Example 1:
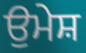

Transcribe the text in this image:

ਉਮੇਸ਼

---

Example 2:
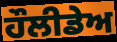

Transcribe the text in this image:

ਹੌਲੀਡੇਅ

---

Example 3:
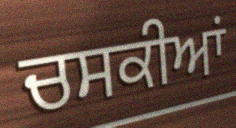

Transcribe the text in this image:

ਚਸਕੀਆਂ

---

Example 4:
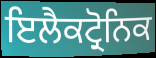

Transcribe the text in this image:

ਇਲੈਕਟ੍ਰੋਨਿਕ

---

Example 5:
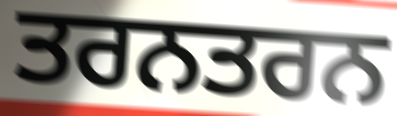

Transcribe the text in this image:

ਤਰਨਤਰਨ